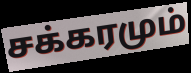
சக்கரமும்